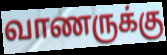
வாணருக்கு